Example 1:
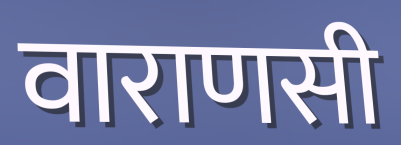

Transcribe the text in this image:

वाराणसी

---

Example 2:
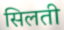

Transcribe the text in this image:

सिलती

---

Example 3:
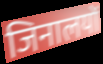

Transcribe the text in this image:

जिनालयों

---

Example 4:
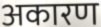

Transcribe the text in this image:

अकारण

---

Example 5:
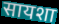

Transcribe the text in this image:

सायशा